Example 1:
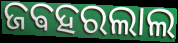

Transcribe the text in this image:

ଜଵହରଲାଲ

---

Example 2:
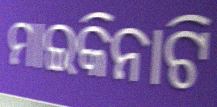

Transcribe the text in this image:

ମାଇକିନାଟି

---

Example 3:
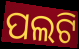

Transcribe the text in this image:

ପଲଟି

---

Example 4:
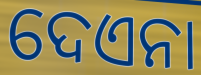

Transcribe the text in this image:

ଦେଏନା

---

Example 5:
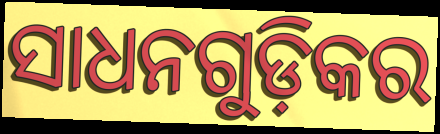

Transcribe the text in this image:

ସାଧନଗୁଡ଼ିକର